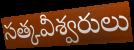
సత్కవీశ్వరులు